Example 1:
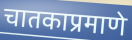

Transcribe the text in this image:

चातकाप्रमाणे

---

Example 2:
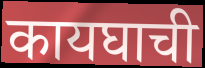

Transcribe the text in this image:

कायघाची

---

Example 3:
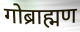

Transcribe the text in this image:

गोब्राह्मण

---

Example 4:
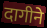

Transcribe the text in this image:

दागीने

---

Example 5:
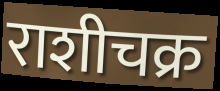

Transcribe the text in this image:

राशीचक्र